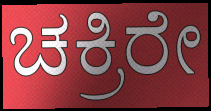
ಚಕ್ರಿರೇ